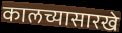
कालच्यासारखे